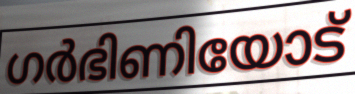
ഗർഭിണിയോട്